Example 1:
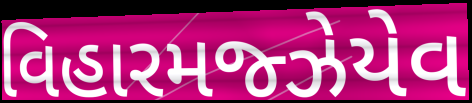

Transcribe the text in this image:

વિહારમજ્ઝેયેવ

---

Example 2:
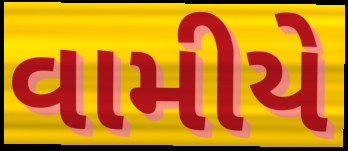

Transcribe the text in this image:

વામીયે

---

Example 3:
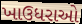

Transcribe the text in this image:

ખાઉધરાઓ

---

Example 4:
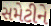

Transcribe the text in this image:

સમેટીને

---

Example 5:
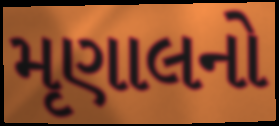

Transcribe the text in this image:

મૃણાલનો